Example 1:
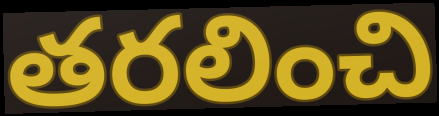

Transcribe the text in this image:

తరలించి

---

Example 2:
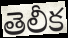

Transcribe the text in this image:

తెలీక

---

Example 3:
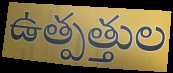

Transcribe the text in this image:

ఉత్పత్తుల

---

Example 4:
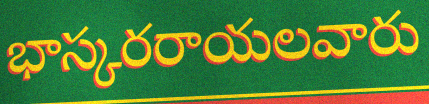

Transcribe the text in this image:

భాస్కరరాయలవారు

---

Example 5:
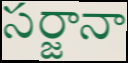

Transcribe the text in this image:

సర్జానా